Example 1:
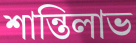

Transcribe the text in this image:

শান্তিলাভ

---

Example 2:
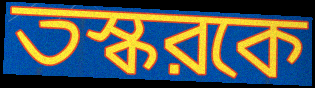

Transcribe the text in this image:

তস্করকে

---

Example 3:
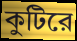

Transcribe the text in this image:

কুটিরে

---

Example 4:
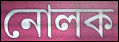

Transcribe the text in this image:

নোলক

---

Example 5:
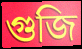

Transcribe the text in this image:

গুজি